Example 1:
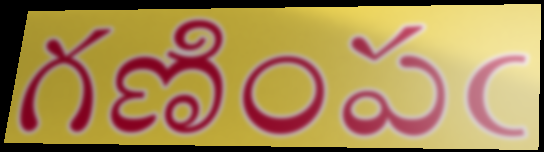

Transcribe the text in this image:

గణింపఁ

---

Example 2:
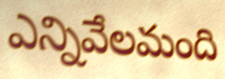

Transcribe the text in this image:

ఎన్నివేలమంది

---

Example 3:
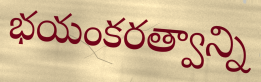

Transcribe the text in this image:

భయంకరత్వాన్ని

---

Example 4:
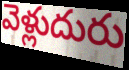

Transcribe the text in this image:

వెళ్లుదురు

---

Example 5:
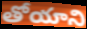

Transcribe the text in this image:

తోయాని